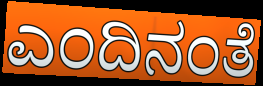
ಎಂದಿನಂತೆ